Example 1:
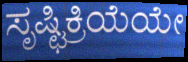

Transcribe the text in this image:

ಸೃಷ್ಟಿಕ್ರಿಯೆಯೇ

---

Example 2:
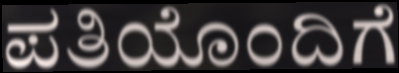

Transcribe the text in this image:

ಪತಿಯೊಂದಿಗೆ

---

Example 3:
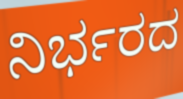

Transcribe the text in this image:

ನಿರ್ಭರದ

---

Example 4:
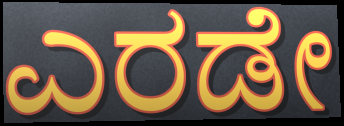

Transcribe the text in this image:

ಎರಡೇ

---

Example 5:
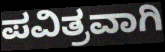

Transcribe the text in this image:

ಪವಿತ್ರವಾಗಿ